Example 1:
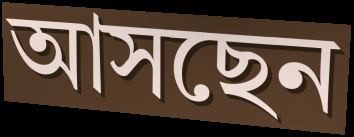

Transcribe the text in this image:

আসছেন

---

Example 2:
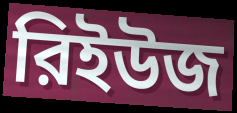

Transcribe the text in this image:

রিইউজ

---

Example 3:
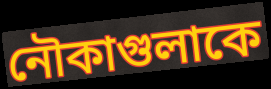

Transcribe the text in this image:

নৌকাগুলাকে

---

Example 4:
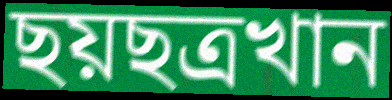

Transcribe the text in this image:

ছয়ছত্রখান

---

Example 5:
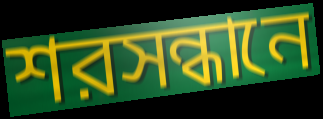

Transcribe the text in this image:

শরসন্ধানে